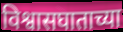
विश्वासघाताच्या